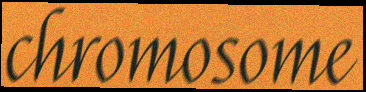
chromosome